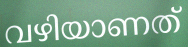
വഴിയാണത്